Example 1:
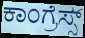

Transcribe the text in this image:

ಕಾಂಗ್ರೆಸ್ಸ್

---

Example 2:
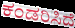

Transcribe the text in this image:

ಕಂಡರಿಸಿದೆ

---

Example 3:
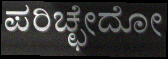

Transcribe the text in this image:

ಪರಿಚ್ಛೇದೋ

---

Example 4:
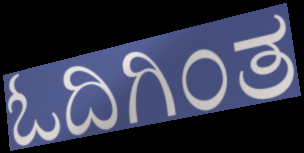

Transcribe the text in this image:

ಓದಿಗಿಂತ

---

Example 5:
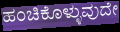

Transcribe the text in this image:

ಹಂಚಿಕೊಳ್ಳುವುದೇ